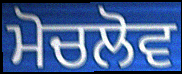
ਮੋਚਲੋਵ